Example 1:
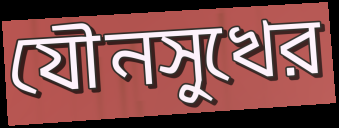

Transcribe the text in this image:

যৌনসুখের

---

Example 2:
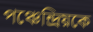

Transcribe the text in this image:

পঞ্চেন্দ্রিয়কে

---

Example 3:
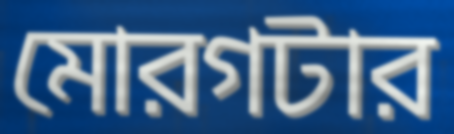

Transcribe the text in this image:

মোরগটার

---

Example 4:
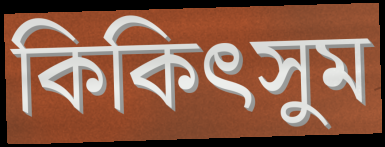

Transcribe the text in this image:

কিকিৎসুম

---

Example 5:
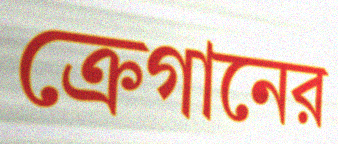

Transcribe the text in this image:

ক্রেগানের